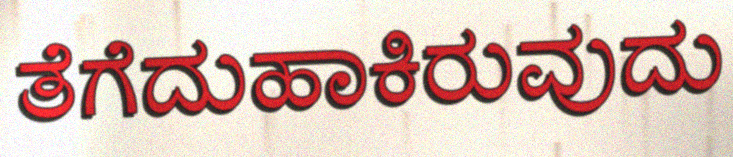
ತೆಗೆದುಹಾಕಿರುವುದು